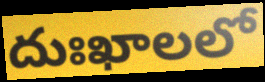
దుఃఖాలలో